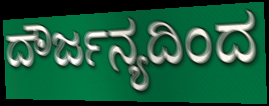
ದೌರ್ಜನ್ಯದಿಂದ